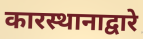
कारस्थानाद्वारे